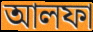
আলফা